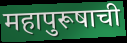
महापुरूषाची